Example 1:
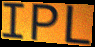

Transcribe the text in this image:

IPL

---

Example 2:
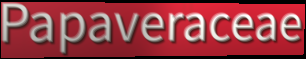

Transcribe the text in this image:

Papaveraceae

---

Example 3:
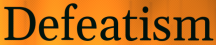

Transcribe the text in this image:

Defeatism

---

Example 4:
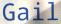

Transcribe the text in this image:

Gail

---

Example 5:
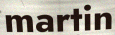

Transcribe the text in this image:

martin